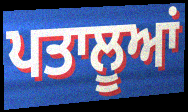
ਪਤਾਲੂਆਂ